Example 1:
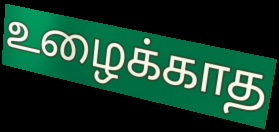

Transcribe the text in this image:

உழைக்காத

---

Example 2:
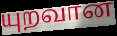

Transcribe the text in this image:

யுறவான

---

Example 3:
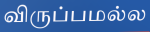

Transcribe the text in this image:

விருப்பமல்ல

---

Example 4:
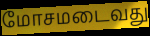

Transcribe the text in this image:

மோசமடைவது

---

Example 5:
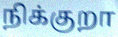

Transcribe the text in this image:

நிக்குறா